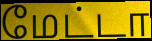
மேட்டா